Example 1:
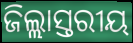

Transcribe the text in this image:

ଜିଲ୍ଲାସ୍ତରୀୟ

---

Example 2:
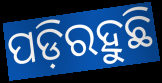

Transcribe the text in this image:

ପଡ଼ିରହୁଛି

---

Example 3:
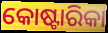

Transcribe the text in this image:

କୋଷ୍ଟାରିକା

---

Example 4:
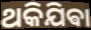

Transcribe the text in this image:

ଥକିଯିଵା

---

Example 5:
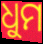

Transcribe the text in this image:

ଧୁମ